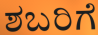
ಶಬರಿಗೆ